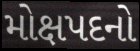
મોક્ષપદનો